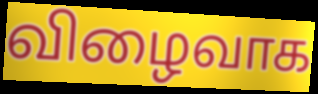
விழைவாக